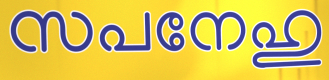
സപനേഹു